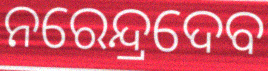
ନରେନ୍ଦ୍ରଦେବ